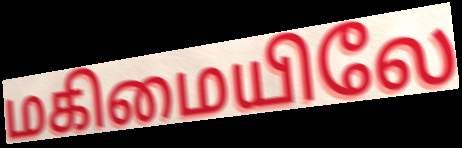
மகிமையிலே